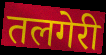
तलगेरी